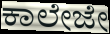
ಕಾಲೇಜೇ